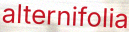
alternifolia